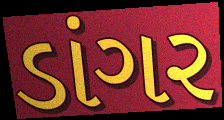
ડાંગર